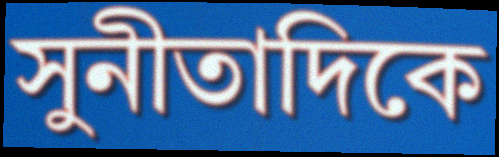
সুনীতাদিকে